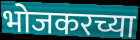
भोजकरच्या